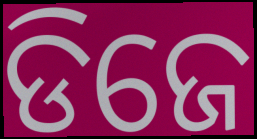
ଡିଜେ